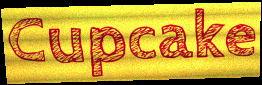
Cupcake